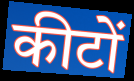
कीटों